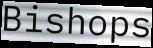
Bishops